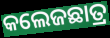
କଲେଜଛାତ୍ର